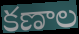
కణాల